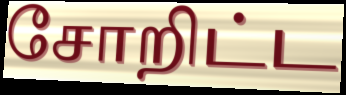
சோறிட்ட